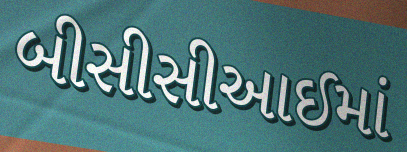
બીસીસીઆઈમાં